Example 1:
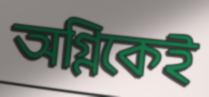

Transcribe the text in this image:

অগ্নিকেই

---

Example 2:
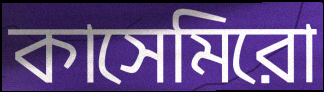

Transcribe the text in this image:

কাসেমিরো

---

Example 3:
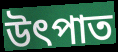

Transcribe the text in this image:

উৎপাত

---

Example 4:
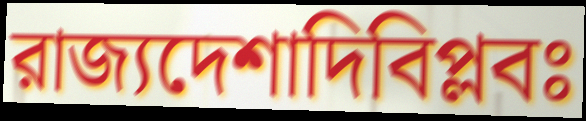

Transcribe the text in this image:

রাজ্যদেশাদিবিপ্লবঃ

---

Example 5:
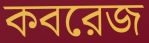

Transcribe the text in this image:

কবরেজ